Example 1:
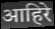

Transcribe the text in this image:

आहिरे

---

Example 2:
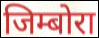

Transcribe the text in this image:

जिम्बोरा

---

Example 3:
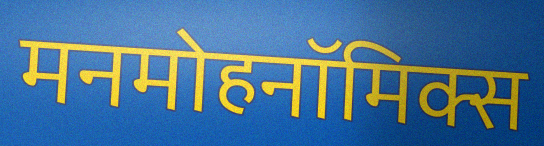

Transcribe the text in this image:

मनमोहनॉमिक्स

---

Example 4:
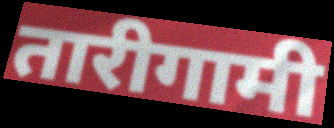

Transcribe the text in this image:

तारीगामी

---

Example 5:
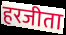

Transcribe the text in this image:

हरजीता